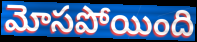
మోసపోయింది